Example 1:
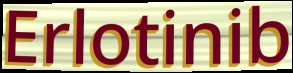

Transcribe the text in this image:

Erlotinib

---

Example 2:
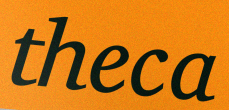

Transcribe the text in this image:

theca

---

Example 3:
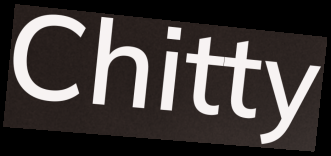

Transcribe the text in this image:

Chitty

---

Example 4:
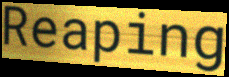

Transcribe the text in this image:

Reaping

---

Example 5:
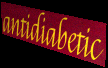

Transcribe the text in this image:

antidiabetic